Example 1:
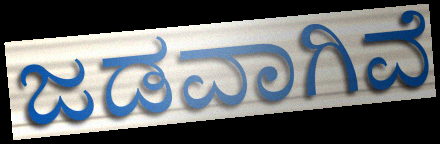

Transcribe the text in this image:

ಜಡವಾಗಿವೆ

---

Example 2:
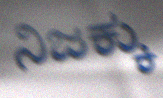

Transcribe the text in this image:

ನಿಜಕ್ಕು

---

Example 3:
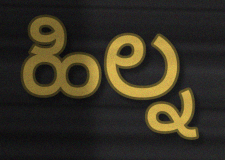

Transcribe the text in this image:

ಹಿಲ್ನ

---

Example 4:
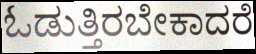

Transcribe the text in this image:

ಓಡುತ್ತಿರಬೇಕಾದರೆ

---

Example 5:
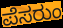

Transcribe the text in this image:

ಪೆಸರುಂ